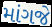
માંગજે